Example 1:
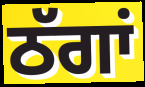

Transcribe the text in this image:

ਠੱਗਾਂ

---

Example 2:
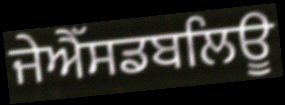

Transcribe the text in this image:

ਜੇਐੱਸਡਬਲਿਊ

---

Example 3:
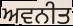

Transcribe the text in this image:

ਅਵਨੀਤ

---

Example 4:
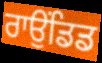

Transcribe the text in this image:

ਰਾਉਂਡਿਡ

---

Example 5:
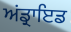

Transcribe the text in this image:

ਅਂਡ੍ਰਾਇਡ